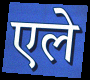
एले